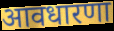
आवधारणा